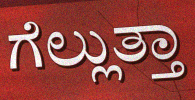
ಗೆಲ್ಲುತ್ತಾ